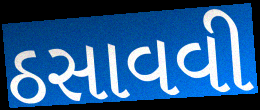
ઠસાવવી